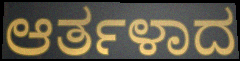
ಆರ್ತಳಾದ